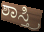
ಶಾಸ್ತ್ರಿ